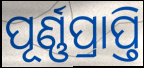
ପୂର୍ଣ୍ଣପ୍ରାପ୍ତି